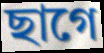
ছাগে